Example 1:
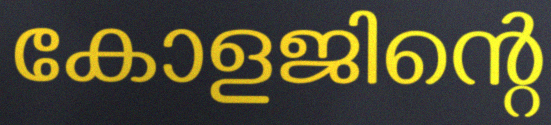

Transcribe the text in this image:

കോളജിന്റെ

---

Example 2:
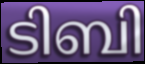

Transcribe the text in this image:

ടിബി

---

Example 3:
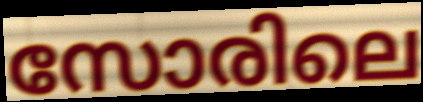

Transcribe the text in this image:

സോരിലെ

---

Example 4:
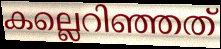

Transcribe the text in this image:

കല്ലെറിഞ്ഞത്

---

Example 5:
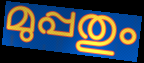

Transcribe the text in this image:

മുപ്പതും